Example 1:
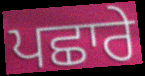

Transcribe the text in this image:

ਪਛਾਰੇ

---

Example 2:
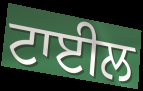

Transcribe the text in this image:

ਟਾਈਲ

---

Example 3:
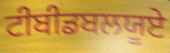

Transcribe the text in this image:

ਟੀਬੀਡਬਲਯੂਏ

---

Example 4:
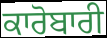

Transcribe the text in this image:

ਕਾਰੋਬਾਰੀ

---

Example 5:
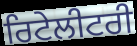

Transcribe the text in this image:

ਰਿਟੇਲੀਟਰੀ